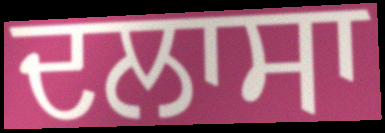
ਦਲਾਸਾ